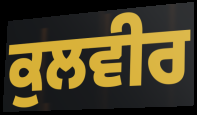
ਕੁਲਵੀਰ